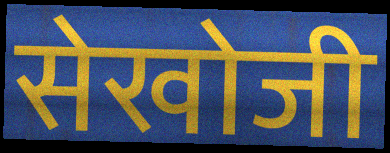
सेखोजी